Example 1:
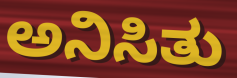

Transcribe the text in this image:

ಅನಿಸಿತು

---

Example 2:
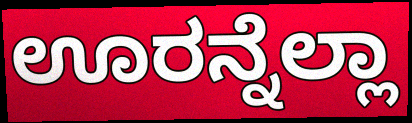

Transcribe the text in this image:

ಊರನ್ನೆಲ್ಲಾ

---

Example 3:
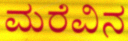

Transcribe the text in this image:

ಮರೆವಿನ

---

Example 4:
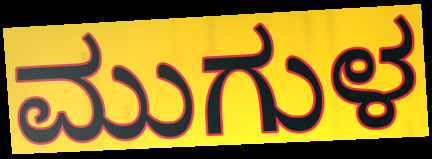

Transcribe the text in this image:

ಮುಗುಳ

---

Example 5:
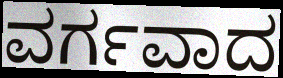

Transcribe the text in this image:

ವರ್ಗವಾದ